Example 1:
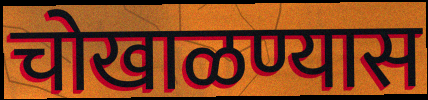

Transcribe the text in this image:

चोखाळण्यास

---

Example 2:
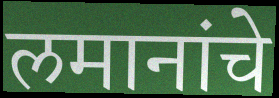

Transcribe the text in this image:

लमानांचे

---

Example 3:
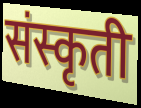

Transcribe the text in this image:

संस्कृती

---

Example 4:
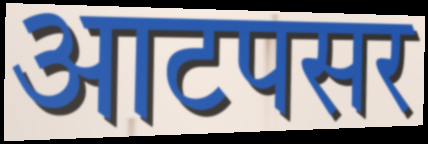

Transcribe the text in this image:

आटपसर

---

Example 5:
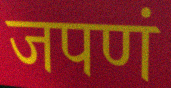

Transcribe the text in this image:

जपणं